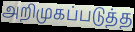
அறிமுகப்படுத்த